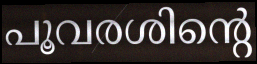
പൂവരശിന്റെ